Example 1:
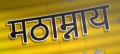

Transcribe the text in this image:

मठाम्नाय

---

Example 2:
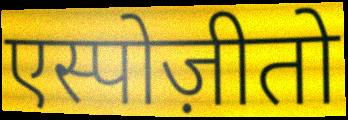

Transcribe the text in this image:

एस्पोज़ीतो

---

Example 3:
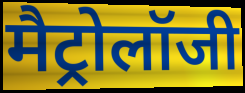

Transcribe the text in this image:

मैट्रोलॉजी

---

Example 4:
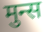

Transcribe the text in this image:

मुन्स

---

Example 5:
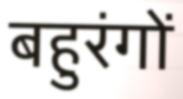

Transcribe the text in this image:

बहुरंगों